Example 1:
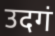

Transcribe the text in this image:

उदगं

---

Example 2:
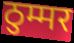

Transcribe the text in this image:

ठुम्मर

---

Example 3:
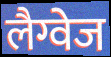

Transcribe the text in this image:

लैग्वेज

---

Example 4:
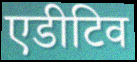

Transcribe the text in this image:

एडीटिव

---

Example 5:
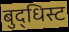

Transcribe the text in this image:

बुद्धिस्ट